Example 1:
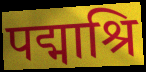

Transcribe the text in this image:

पद्माश्रि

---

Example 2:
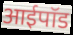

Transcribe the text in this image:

आईपॉड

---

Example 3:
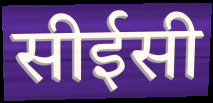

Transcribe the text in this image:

सीईसी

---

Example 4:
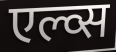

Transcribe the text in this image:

एल्व्स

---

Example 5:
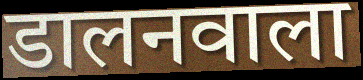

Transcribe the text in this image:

डालनवाला